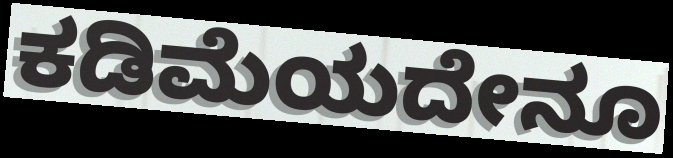
ಕಡಿಮೆಯದೇನೂ